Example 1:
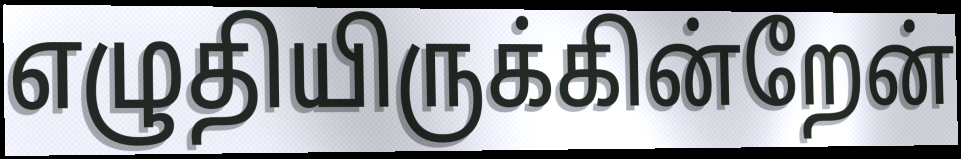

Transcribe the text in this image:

எழுதியிருக்கின்றேன்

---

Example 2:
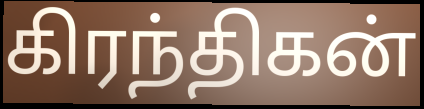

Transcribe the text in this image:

கிரந்திகன்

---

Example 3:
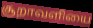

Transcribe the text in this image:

சூறாவளியை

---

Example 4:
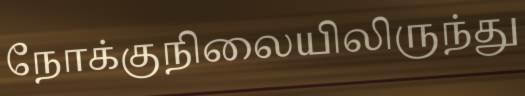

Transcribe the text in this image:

நோக்குநிலையிலிருந்து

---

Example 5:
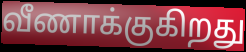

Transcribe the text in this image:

வீணாக்குகிறது